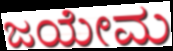
ಜಯೇಮ